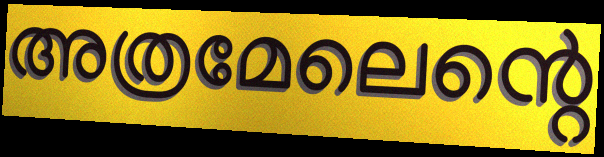
അത്രമേലെന്റെ